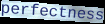
perfectness